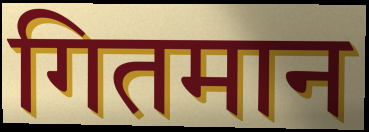
गितमान